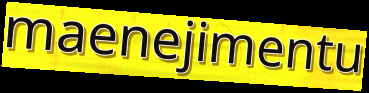
maenejimentu